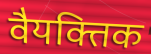
वैयक्तिक